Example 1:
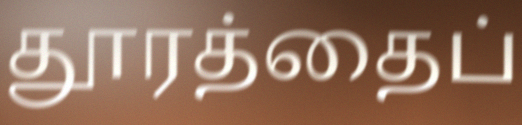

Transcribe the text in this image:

தூரத்தைப்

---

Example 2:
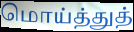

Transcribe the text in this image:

மொய்த்துத்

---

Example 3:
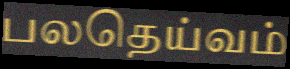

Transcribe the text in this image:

பலதெய்வம்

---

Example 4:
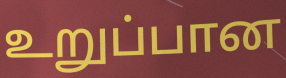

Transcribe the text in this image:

உறுப்பான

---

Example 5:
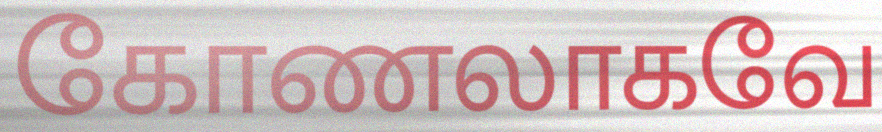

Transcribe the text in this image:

கோணலாகவே